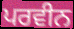
ਪਰਵੀਨ